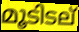
മൂടിടല്